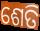
ଶେତି